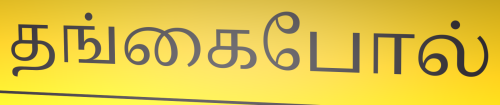
தங்கைபோல்